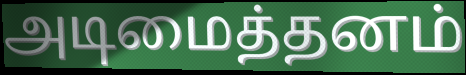
அடிமைத்தனம்